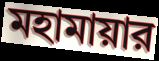
মহামায়ার